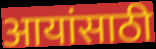
आयांसाठी